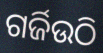
ଗର୍ଜିଉଠି